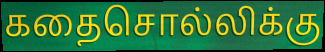
கதைசொல்லிக்கு